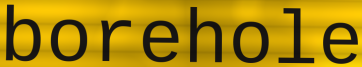
borehole